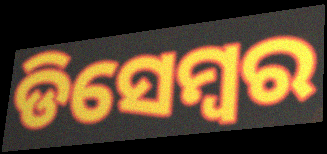
ଡିସେମ୍ୱର